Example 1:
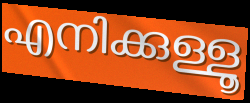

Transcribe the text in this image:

എനിക്കുള്ളൂ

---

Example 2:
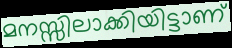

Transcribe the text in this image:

മനസ്സിലാക്കിയിട്ടാണ്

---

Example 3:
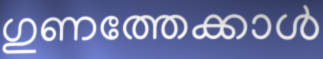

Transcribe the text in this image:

ഗുണത്തേക്കാൾ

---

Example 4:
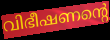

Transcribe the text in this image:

വിഭീഷണന്റെ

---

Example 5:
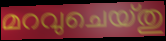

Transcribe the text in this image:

മറവുചെയ്തു